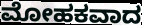
ಮೋಹಕವಾದ